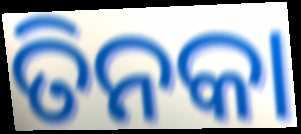
ତିନକା